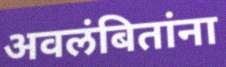
अवलंबितांना